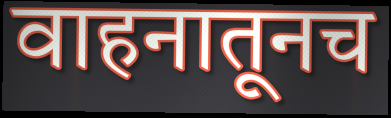
वाहनातूनच